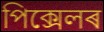
পিক্সেলৰ